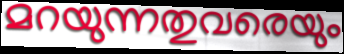
മറയുന്നതുവരെയും